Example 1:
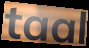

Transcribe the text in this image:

taal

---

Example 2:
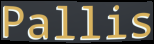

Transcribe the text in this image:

Pallis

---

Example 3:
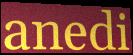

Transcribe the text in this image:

anedi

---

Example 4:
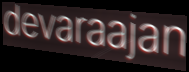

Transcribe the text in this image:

devaraajan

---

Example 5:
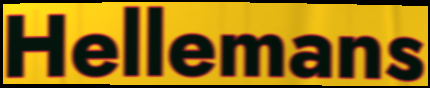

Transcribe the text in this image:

Hellemans